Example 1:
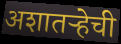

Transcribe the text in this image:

अशातऱ्हेची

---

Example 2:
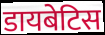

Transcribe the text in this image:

डायबेटिस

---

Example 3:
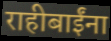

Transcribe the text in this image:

राहीबाईंना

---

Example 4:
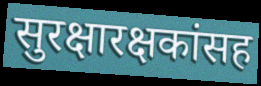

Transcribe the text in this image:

सुरक्षारक्षकांसह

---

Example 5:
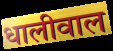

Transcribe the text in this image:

धालीवाल